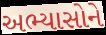
અભ્યાસોને